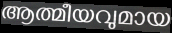
ആത്മീയവുമായ